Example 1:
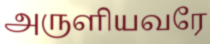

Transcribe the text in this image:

அருளியவரே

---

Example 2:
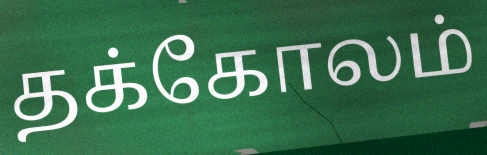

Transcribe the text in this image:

தக்கோலம்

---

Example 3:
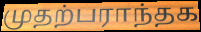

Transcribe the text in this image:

முதற்பராந்தக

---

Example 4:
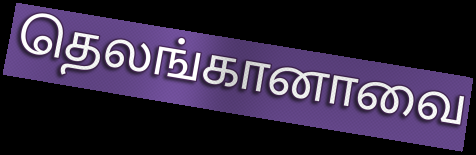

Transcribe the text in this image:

தெலங்கானாவை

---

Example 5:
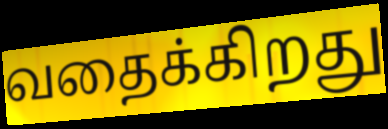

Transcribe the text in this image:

வதைக்கிறது